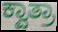
ಕ್ವಾತ್ರಾ